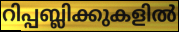
റിപ്പബ്ലിക്കുകളിൽ